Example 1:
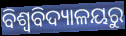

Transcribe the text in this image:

ବିଶ୍ୱବିଦ୍ୟାଳୟରୁ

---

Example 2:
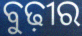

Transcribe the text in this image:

ବୁଢ଼ୀର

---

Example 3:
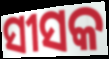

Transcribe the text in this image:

ସୀସକ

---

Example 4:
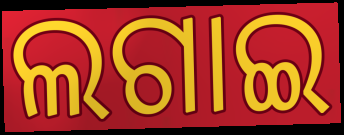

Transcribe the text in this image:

ଲଗାଇ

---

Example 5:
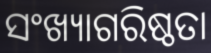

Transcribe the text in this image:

ସଂଖ୍ୟାଗରିଷ୍ଠତା